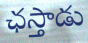
ఛస్తాడు